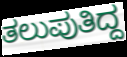
ತಲುಪುತಿದ್ದ